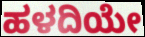
ಹಳದಿಯೇ